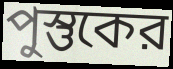
পুস্তুকের